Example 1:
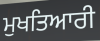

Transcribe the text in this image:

ਮੁਖਤਿਆਰੀ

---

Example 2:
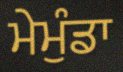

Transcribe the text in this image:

ਮੇਮੁੰਡਾ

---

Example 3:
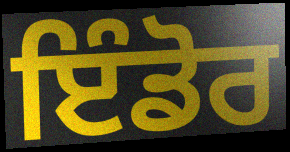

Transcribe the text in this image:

ਇੰਡੋਰ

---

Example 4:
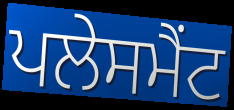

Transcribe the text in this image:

ਪਲੇਸਮੈਂਟ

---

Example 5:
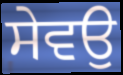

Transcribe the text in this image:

ਸੇਵਉ